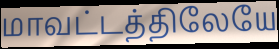
மாவட்டத்திலேயே